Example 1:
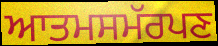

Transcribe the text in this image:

ਆਤਮਸਮੱਰਪਣ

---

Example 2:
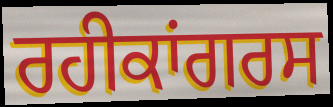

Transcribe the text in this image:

ਰਹੀਕਾਂਗਰਸ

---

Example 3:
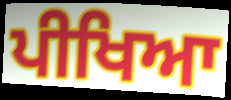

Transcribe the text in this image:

ਪੀਖਿਆ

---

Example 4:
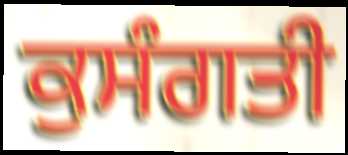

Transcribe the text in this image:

ਕੁਸੰਗਤੀ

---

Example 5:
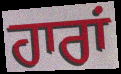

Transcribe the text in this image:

ਹਾਰਾਂ